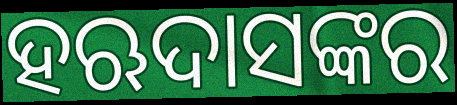
ହଋଦାସଙ୍କର